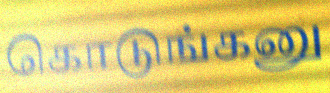
கொடுங்கனு